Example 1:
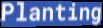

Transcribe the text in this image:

Planting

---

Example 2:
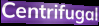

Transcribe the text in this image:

Centrifugal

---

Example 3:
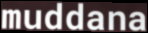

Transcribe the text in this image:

muddana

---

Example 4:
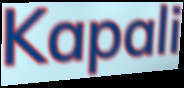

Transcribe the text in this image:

Kapali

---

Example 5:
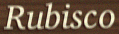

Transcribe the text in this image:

Rubisco